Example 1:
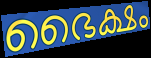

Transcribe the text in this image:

ഭൈക്ഷം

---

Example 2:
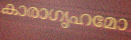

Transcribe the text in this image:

കാരാഗൃഹമോ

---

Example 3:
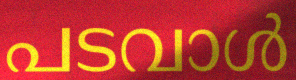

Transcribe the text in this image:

പടവാൾ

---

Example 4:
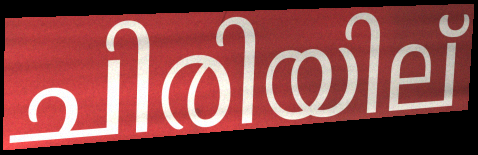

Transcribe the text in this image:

ചിരിയില്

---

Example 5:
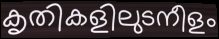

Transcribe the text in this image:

കൃതികളിലുടനീളം